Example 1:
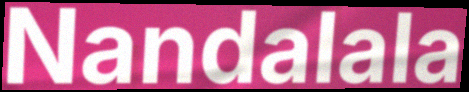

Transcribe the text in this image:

Nandalala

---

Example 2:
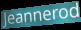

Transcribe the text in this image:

Jeannerod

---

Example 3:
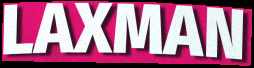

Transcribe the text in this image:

LAXMAN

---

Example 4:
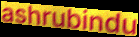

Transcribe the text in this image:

ashrubindu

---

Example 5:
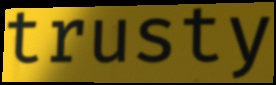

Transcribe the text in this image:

trusty